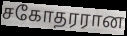
சகோதரரான